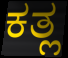
ಕತ್ಲ